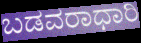
ಬಡವರಾಧಾರಿ